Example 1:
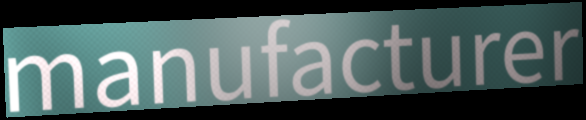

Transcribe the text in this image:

manufacturer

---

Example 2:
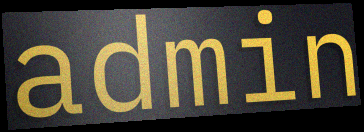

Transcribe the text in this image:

admin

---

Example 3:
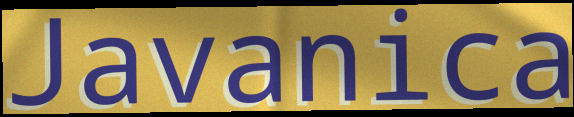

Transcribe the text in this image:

Javanica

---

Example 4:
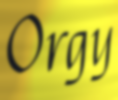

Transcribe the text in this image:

Orgy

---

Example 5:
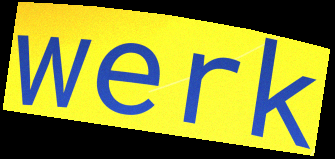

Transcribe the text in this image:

werk